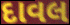
દાવલ